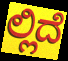
ಲ್ಲಿದೆ